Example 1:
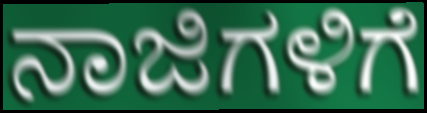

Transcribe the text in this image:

ನಾಜಿಗಳಿಗೆ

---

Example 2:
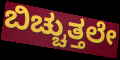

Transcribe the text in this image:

ಬಿಚ್ಚುತ್ತಲೇ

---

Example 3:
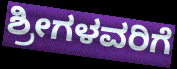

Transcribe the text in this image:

ಶ್ರೀಗಳವರಿಗೆ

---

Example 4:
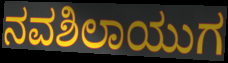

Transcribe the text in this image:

ನವಶಿಲಾಯುಗ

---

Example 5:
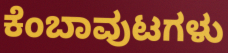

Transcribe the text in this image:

ಕೆಂಬಾವುಟಗಳು